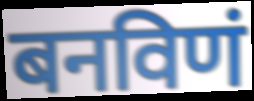
बनविणं